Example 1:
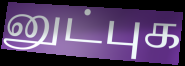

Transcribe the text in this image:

னுட்புக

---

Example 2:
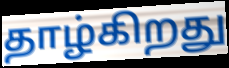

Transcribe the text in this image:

தாழ்கிறது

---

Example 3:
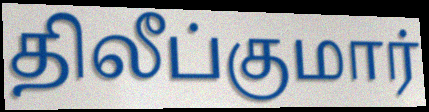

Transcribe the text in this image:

திலீப்குமார்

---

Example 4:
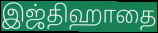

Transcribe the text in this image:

இஜ்திஹாதை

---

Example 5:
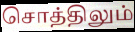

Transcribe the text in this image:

சொத்திலும்